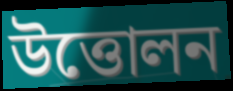
উত্তোলন